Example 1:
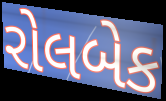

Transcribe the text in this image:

રોલબેક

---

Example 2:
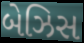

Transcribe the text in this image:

બેઝિસ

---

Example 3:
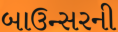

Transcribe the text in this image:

બાઉન્સરની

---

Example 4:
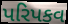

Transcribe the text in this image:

પરિપકવ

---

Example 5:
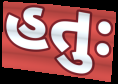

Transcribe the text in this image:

હતુઃ